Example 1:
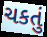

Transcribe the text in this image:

ચકતું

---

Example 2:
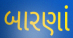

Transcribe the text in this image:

બારણાં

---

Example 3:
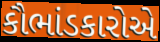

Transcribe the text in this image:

કૌભાંડકારોએ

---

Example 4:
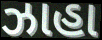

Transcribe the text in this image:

ઝાહા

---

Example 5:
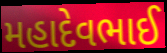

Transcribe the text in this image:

મહાદેવભાઈ